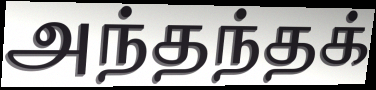
அந்தந்தக்